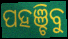
ପହଞ୍ଚିବୁ